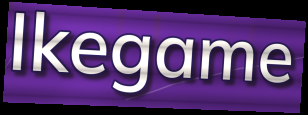
Ikegame